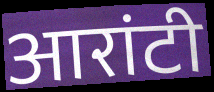
आरांटी